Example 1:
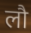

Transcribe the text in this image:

लौ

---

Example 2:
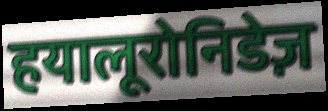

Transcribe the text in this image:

हयालूरोनिडेज़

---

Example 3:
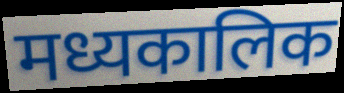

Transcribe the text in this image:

मध्यकालिक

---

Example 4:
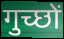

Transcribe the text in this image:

गुच्छों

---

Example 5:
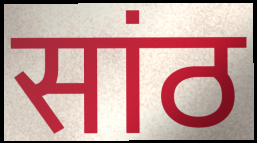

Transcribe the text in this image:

सांठ